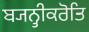
ਬ੍ਯਨ੍ਤੀਕਰੋਤਿ